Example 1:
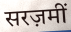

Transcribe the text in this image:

सरज़मीं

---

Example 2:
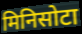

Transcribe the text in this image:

मिनिसोटा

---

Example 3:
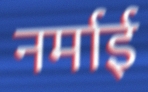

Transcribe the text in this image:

नर्माई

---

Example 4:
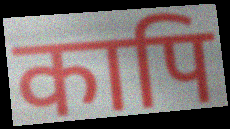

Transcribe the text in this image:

कापि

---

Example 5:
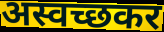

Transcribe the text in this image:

अस्वच्छकर